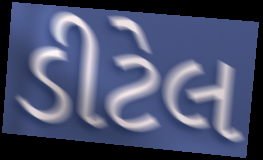
ડીટેલ